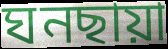
ঘনছায়া